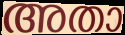
അതാ